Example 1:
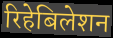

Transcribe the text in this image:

रिहेबिलेशन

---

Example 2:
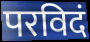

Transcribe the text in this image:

परविदं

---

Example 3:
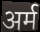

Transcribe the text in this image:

अर्म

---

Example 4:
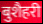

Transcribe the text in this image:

बुशैहरी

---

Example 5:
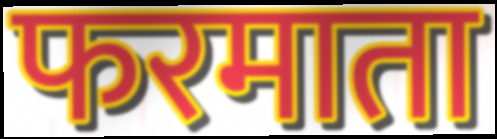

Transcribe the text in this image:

फरमाता